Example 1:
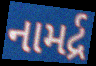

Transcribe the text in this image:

નામર્દ્ર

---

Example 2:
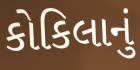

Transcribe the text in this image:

કોકિલાનું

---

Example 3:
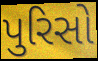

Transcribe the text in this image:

પુરિસો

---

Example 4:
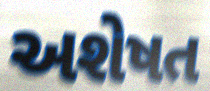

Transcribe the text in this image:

અશેષત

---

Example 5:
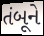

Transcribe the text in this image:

તંબૂને